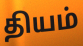
தியம்